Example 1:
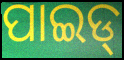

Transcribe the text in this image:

ପାଇଡ୍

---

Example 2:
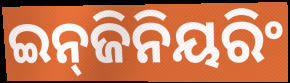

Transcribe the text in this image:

ଇନ୍‍ଜିନିୟରିଂ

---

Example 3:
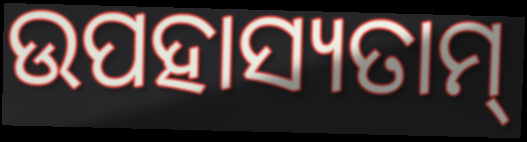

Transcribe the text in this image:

ଉପହାସ୍ୟତାମ୍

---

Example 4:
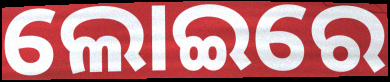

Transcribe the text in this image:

ଲୋଇରେ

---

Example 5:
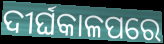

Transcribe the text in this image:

ଦୀର୍ଘକାଳପରେ